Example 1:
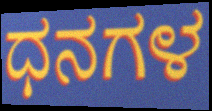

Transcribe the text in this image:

ಧನಗಳ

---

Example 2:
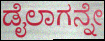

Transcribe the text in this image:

ಡೈಲಾಗನ್ನೇ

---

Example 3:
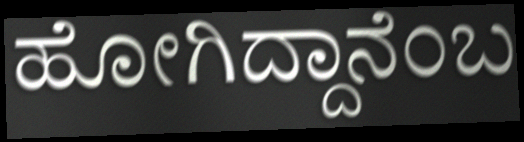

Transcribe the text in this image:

ಹೋಗಿದ್ದಾನೆಂಬ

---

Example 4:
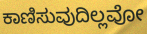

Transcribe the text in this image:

ಕಾಣಿಸುವುದಿಲ್ಲವೋ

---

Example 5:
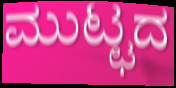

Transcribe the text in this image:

ಮುಟ್ಟದ